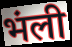
भंली